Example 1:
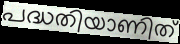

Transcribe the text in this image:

പദ്ധതിയാണിത്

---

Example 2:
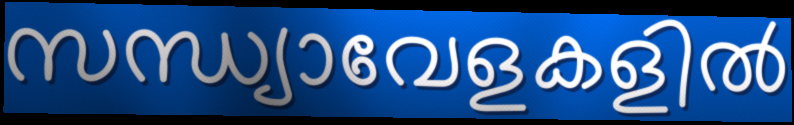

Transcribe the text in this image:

സന്ധ്യാവേളകളിൽ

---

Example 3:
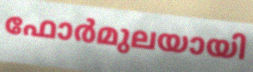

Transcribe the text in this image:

ഫോർമുലയായി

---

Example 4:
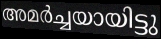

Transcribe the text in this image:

അമർച്ചയായിട്ടു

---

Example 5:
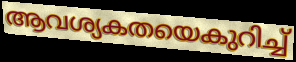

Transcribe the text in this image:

ആവശ്യകതയെകുറിച്ച്